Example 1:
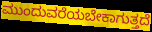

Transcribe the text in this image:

ಮುಂದುವರೆಯಬೇಕಾಗುತ್ತದೆ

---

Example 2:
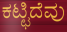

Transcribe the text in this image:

ಕಟ್ಟಿದೆವು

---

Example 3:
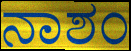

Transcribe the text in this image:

ನಾಶಂ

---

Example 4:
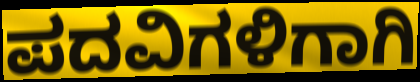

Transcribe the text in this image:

ಪದವಿಗಳಿಗಾಗಿ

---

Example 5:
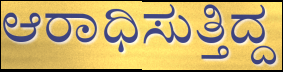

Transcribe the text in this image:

ಆರಾಧಿಸುತ್ತಿದ್ದ